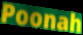
Poonah